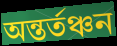
অন্তর্তঞ্চন